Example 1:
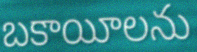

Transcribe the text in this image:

బకాయీలను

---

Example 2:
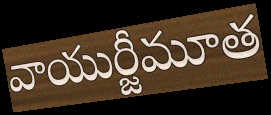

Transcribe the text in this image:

వాయుర్జీమూత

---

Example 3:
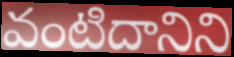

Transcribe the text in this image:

వంటిదానిని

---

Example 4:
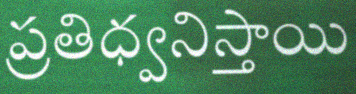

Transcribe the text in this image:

ప్రతిధ్వనిస్తాయి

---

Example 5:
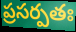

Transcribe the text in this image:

ప్రసర్పతః